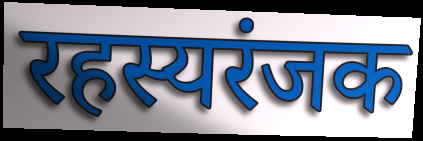
रहस्यरंजक